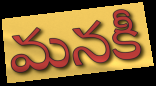
మనకీ